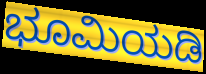
ಭೂಮಿಯಡಿ